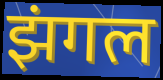
झंगल